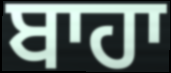
ਬਾਹਾ